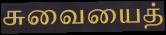
சுவையைத்